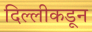
दिल्लीकडून